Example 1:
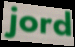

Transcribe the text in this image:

jord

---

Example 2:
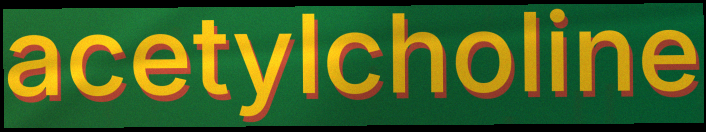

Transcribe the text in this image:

acetylcholine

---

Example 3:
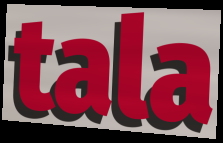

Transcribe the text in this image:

tala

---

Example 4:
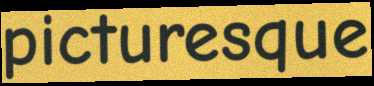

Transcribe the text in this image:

picturesque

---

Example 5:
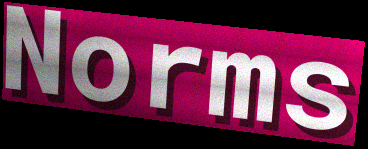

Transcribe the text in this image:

Norms